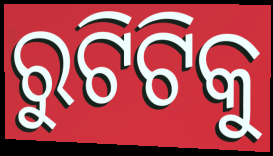
ରୁଟିଟିକୁ